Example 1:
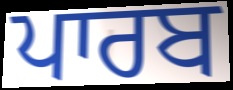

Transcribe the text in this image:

ਪਾਰਬ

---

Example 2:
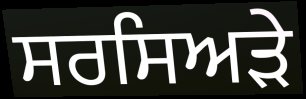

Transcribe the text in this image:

ਸਰਸਿਅੜੇ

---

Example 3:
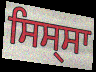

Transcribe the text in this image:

ਸਿਸ੍ਸਾ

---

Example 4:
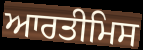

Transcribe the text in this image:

ਆਰਤੀਮਿਸ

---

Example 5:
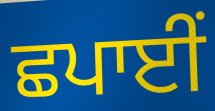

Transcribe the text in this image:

ਛਪਾਈਂ